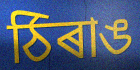
ঠিৰাঙ